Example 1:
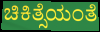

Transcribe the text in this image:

ಚಿಕಿತ್ಸೆಯಂತೆ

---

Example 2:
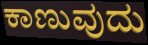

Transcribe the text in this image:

ಕಾಣುವುದು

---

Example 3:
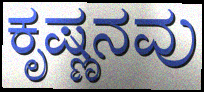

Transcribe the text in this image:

ಕೃಷ್ಣನವು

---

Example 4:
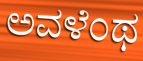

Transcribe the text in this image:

ಅವಳೆಂಥ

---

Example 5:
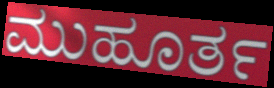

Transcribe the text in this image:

ಮುಹೂರ್ತ